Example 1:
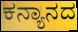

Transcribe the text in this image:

ಕನ್ಯಾನದ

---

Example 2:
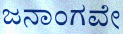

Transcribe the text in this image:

ಜನಾಂಗವೇ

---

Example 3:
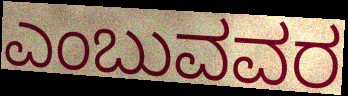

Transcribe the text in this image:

ಎಂಬುವವರ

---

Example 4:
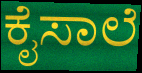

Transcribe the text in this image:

ಕೈಸಾಲೆ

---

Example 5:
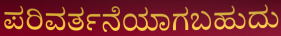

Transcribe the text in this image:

ಪರಿವರ್ತನೆಯಾಗಬಹುದು